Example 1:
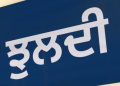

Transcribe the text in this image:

ਝੁਲਦੀ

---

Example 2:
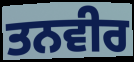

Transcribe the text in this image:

ਤਨਵੀਰ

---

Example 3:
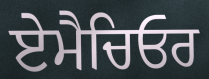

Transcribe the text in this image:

ਏਮੈਚਿਓਰ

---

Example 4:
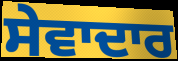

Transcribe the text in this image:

ਸੇਵਾਦਾਰ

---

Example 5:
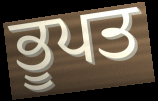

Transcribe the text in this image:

ਭੂਪਤ